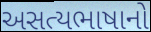
અસત્યભાષાનો